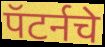
पॅटर्नचे